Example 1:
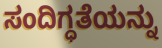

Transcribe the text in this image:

ಸಂದಿಗ್ಧತೆಯನ್ನು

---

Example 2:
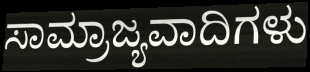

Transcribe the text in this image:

ಸಾಮ್ರಾಜ್ಯವಾದಿಗಳು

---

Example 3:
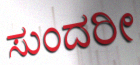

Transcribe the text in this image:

ಸುಂದರೀ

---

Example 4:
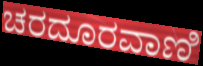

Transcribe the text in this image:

ಚರದೂರವಾಣಿ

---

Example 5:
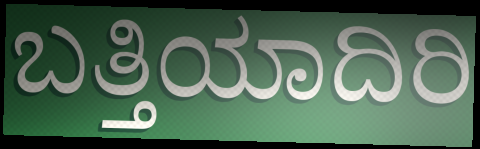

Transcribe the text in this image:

ಬತ್ತಿಯಾದಿರಿ